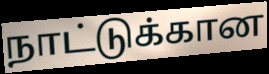
நாட்டுக்கான